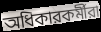
অধিকারকর্মীরা